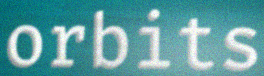
orbits